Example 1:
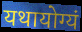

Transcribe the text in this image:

यथायोग्यं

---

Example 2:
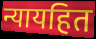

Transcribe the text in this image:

न्यायहित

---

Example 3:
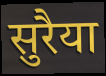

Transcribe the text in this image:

सुरैया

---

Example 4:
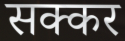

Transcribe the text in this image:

सक्कर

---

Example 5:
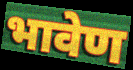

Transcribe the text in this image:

भावेण